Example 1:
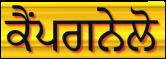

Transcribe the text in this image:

ਕੈਂਪਗਨੇਲੋ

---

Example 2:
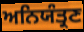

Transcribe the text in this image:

ਅਨਿਯੰਤ੍ਰਣ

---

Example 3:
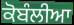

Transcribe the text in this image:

ਕੋਬੰਲੀਆ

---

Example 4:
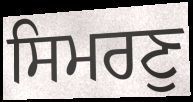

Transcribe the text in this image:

ਸਿਮਰਣੁ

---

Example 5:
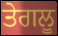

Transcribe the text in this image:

ਤੇਗਲੂ